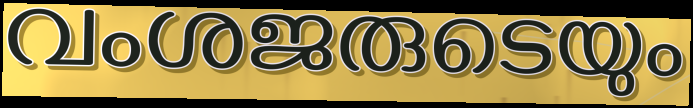
വംശജരുടെയും